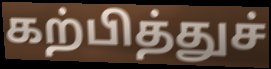
கற்பித்துச்